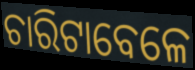
ଚାରିଟାବେଳେ